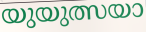
യുയുത്സയാ